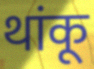
थांकू